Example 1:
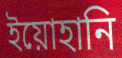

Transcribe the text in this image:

ইয়োহানি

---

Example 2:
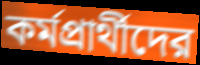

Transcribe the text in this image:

কর্মপ্রার্থীদের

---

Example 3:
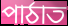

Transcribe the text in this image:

পাঠাত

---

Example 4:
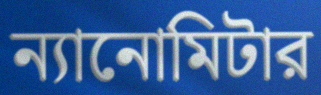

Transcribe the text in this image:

ন্যানোমিটার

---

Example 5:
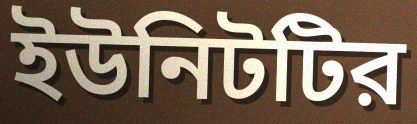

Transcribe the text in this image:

ইউনিটটির